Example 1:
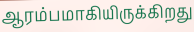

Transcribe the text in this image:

ஆரம்பமாகியிருக்கிறது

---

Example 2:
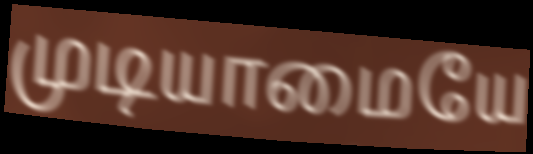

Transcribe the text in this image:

முடியாமையே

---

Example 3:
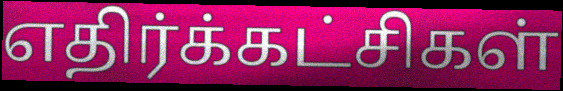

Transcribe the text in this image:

எதிர்க்கட்சிகள்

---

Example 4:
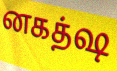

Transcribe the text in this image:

னகத்ஷ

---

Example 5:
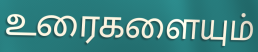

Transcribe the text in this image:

உரைகளையும்